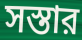
সস্তার